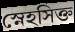
স্নেহসিক্ত